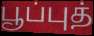
பூப்புத்